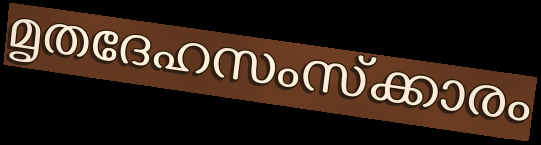
മൃതദേഹസംസ്‌ക്കാരം